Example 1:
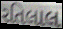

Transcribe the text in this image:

રતિલાલ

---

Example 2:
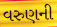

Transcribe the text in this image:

વરુણની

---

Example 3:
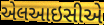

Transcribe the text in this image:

એલઆઇસીએ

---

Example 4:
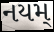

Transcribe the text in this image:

નયમ્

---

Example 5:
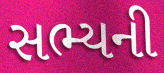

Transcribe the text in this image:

સભ્યની